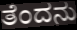
ತೆಂದನು